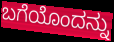
ಬಗೆಯೊಂದನ್ನು